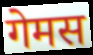
गेमस